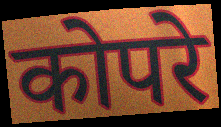
कोपरे